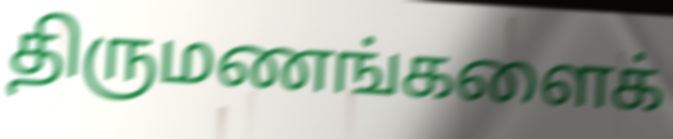
திருமணங்களைக்